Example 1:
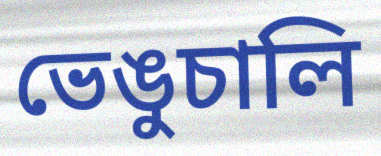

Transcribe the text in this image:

ভেঙুচালি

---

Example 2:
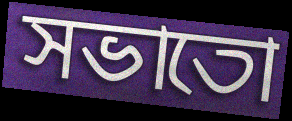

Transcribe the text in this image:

সভাতো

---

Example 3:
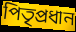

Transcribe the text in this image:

পিতৃপ্ৰধান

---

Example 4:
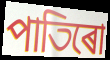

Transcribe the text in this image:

পাতিৰো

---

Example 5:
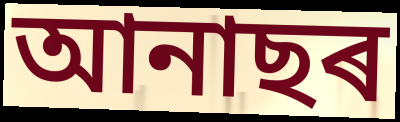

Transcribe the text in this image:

আনাছৰ